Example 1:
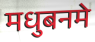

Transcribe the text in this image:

मधुबनमे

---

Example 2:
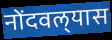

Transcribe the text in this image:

नोंदवल्यास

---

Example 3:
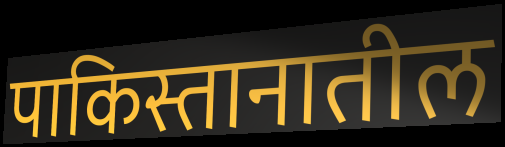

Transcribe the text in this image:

पाकिस्‍तानातील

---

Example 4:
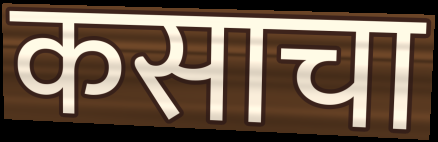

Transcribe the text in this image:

कसाचा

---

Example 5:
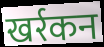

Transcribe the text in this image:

खर्रकन